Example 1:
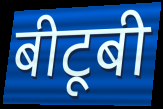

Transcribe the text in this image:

बीटूबी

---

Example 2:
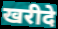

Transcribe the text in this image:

खरीदे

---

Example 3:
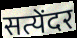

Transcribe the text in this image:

सत्येंदर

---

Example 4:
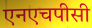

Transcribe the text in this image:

एनएचपीसी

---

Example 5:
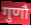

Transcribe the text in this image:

गुणौ